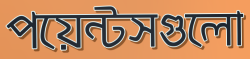
পয়েন্টসগুলো